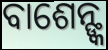
ବାଶେନ୍ଙ୍କ